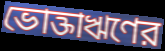
ভোক্তাঋণের